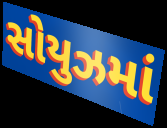
સોયુઝમાં